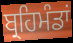
ਬ੍ਰਹਿਮੰਡਾਂ